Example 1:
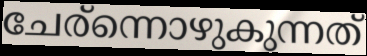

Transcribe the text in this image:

ചേര്ന്നൊഴുകുന്നത്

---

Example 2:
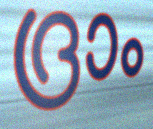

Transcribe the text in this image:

ദ്രാം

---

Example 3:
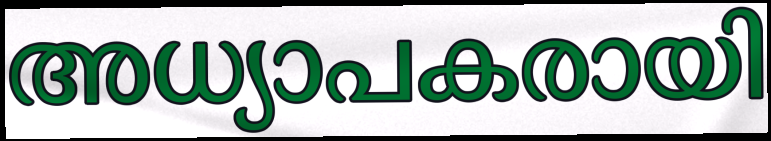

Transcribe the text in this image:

അധ്യാപകരായി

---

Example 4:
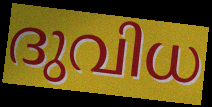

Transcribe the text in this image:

ദുവിധ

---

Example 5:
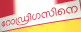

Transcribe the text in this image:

റോഡ്രീഗസിനെ